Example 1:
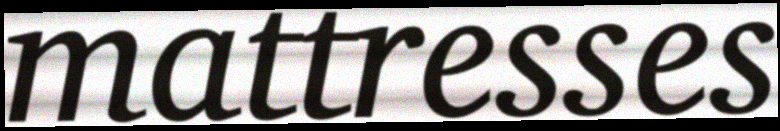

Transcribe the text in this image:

mattresses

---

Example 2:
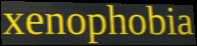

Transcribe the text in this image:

xenophobia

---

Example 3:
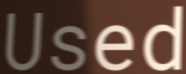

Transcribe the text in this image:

Used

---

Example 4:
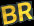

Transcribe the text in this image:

BR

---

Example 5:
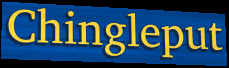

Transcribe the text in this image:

Chingleput